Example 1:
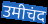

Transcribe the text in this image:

उमीचंद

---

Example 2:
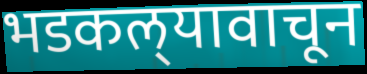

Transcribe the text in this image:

भडकल्यावाचून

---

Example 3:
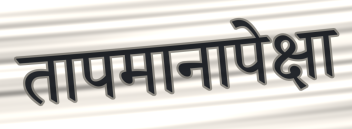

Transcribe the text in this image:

तापमानापेक्षा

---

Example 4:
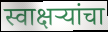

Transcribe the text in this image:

स्वाक्षऱ्यांचा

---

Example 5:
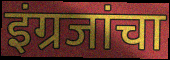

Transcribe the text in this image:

इंग्रजांचा